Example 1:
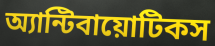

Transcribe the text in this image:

অ্যান্টিবায়োটিকস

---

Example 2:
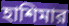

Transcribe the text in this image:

হাশিমার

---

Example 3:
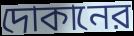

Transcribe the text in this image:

দোকানের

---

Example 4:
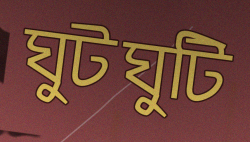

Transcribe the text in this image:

ঘুটঘুটি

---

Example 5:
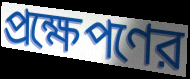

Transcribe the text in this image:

প্রক্ষেপণের